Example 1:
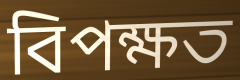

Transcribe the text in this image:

বিপক্ষত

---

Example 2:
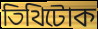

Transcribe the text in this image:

তিথিটোক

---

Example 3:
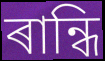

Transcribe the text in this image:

ৰান্ধি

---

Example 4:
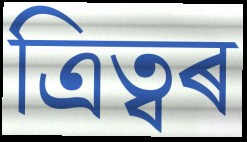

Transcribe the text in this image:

ত্ৰিত্বৰ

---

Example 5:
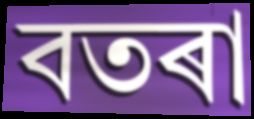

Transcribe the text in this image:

বতৰা